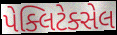
પેક્લિટેક્સેલ